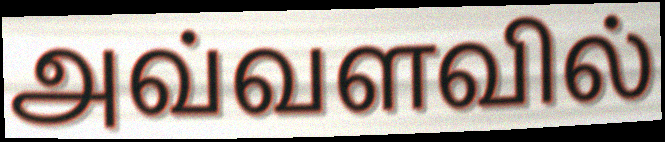
அவ்வளவில்